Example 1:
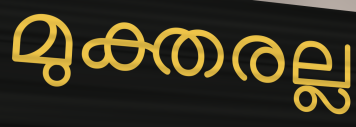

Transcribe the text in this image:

മുക്തരല്ല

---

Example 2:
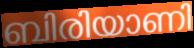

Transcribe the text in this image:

ബിരിയാണി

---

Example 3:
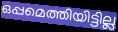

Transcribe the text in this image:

ഒപ്പമെത്തിയിട്ടില്ല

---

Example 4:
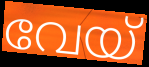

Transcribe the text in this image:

വേയ്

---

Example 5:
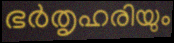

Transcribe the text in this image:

ഭർതൃഹരിയും